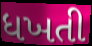
ધખતી